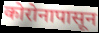
कोरोनापासून